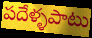
పదేళ్ళపాటు